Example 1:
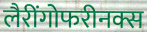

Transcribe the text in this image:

लैरींगोफरीनक्स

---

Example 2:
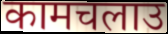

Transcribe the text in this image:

कामचलाउ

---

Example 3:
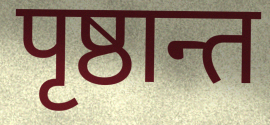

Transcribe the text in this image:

पृष्ठान्त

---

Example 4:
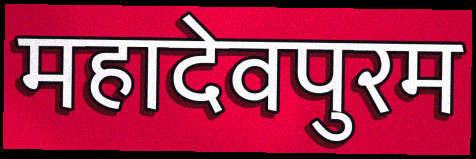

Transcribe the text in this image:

महादेवपुरम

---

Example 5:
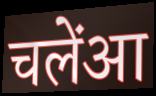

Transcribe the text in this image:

चलेंआ